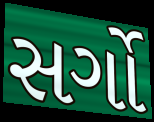
સર્ગો